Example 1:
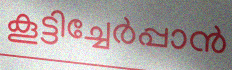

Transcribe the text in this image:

കൂട്ടിച്ചേർപ്പാൻ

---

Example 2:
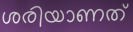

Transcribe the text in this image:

ശരിയാണത്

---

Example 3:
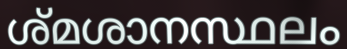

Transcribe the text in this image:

ശ്മശാനസ്ഥലം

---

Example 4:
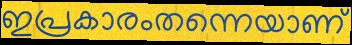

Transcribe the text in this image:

ഇപ്രകാരംതന്നെയാണ്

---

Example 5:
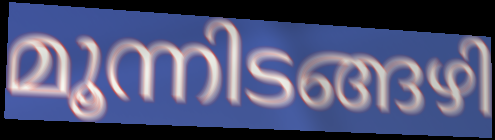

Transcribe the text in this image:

മൂന്നിടങ്ങഴി